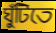
ঘুঁটিতে